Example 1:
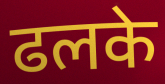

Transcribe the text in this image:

ढलके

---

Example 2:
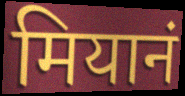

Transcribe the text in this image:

मियानं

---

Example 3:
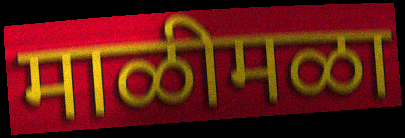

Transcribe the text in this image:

माळीमळा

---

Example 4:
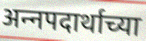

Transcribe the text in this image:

अन्नपदार्थाच्या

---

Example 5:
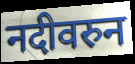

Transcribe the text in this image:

नदीवरुन